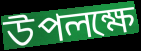
উপলক্ষে